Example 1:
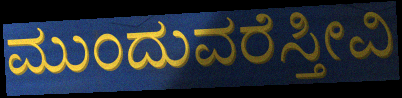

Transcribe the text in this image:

ಮುಂದುವರೆಸ್ತೀವಿ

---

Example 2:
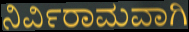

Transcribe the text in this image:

ನಿರ್ವಿರಾಮವಾಗಿ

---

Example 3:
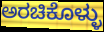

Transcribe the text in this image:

ಅರಚಿಕೊಳ್ಳು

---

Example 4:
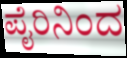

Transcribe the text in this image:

ಪೈರಿನಿಂದ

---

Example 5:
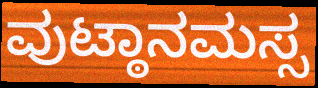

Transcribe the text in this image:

ವುಟ್ಠಾನಮಸ್ಸ